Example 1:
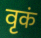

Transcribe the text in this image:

वृकं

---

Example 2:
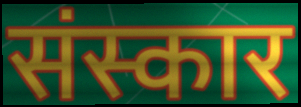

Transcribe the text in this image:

संस्कार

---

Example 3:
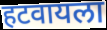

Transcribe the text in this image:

हटवायला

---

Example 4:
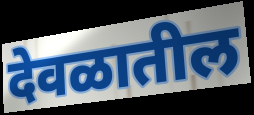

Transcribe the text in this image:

देवळातील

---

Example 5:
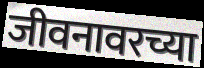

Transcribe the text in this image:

जीवनावरच्या